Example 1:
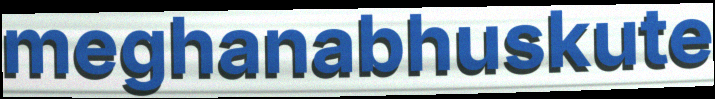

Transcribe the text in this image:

meghanabhuskute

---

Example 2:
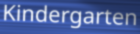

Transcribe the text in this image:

Kindergarten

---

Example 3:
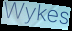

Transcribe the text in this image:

Wykes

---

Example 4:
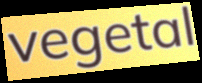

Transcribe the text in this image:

vegetal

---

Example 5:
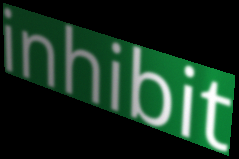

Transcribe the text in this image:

inhibit